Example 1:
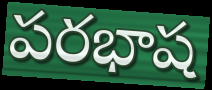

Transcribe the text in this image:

పరభాష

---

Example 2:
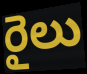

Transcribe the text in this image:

రైలు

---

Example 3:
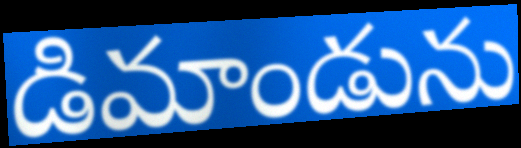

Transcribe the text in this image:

డిమాండును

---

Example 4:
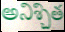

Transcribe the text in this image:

అనిశ్చిత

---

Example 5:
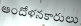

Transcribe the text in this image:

ఆందోళనకారులు